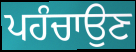
ਪਹੰਚਾਉਣ